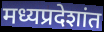
मध्यप्रदेशांत